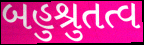
બહુશ્રુતત્વ